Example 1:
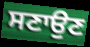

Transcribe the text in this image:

ਸਣਾਉਣ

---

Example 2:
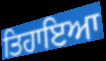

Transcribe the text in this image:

ਤਿਹਾਇਆ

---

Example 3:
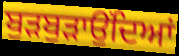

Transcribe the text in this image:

ਬੁੜਬੁੜਾਉਂਦਿਆਂ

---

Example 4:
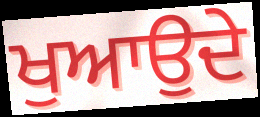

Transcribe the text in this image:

ਖੁਆਉਦੇ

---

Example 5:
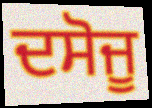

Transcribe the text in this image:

ਦਸੋਜੂ